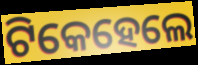
ଟିକେହେଲେ